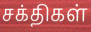
சக்திகள்